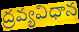
ద్రవ్యవిధాన